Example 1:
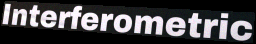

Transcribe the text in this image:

Interferometric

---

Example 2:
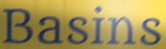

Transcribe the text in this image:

Basins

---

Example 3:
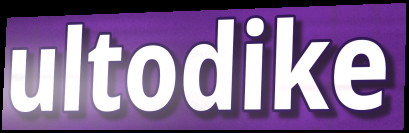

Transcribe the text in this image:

ultodike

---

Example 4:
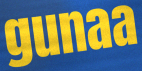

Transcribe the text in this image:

gunaa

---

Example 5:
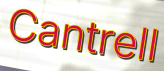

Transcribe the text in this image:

Cantrell